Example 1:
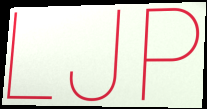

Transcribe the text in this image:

LJP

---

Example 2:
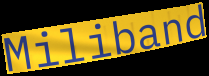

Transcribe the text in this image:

Miliband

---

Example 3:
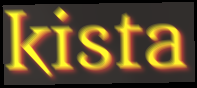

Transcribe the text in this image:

kista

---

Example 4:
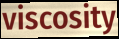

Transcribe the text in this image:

viscosity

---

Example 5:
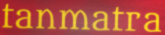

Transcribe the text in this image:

tanmatra